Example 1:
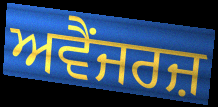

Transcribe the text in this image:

ਅਵੈਂਜਰਜ਼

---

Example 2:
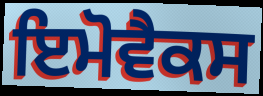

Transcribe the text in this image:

ਇਮੋਵੈਕਸ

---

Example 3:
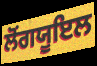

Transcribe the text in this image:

ਲੋਂਗਯੂਇਲ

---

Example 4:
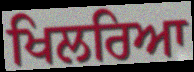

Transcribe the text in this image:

ਖਿਲਰਿਆ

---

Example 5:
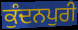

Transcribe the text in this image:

ਕੁੰਦਨਪੁਰੀ